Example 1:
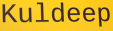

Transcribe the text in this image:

Kuldeep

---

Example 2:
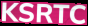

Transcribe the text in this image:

KSRTC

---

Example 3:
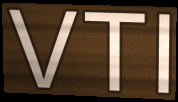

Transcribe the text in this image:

VTI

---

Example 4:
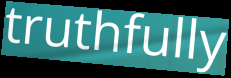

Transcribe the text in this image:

truthfully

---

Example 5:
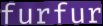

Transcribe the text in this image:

furfur